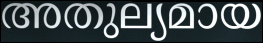
അതുല്യമായ